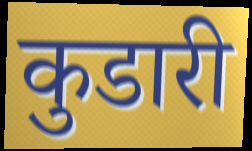
कुडारी